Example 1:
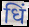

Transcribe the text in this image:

धिं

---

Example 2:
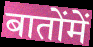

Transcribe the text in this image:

बातोंमें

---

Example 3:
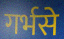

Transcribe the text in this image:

गर्भसे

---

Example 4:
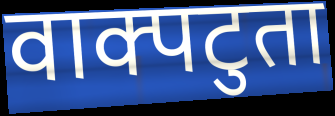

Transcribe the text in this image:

वाक्पटुता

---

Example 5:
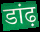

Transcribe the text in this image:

डांढ़